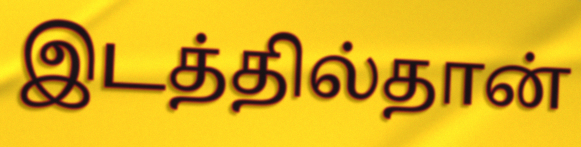
இடத்தில்தான்